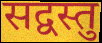
सद्वस्तु